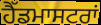
ਹੈੱਡਮਾਸਟਰਾਂ